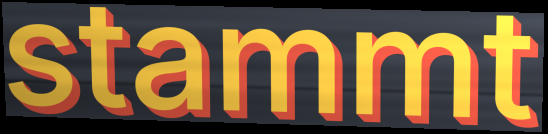
stammt